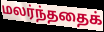
மலர்ந்ததைக்